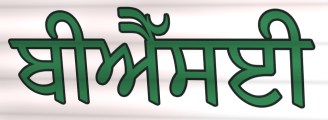
ਬੀਐੱਸਈ